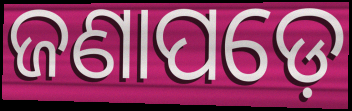
ଜଣାପଡ଼େ